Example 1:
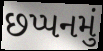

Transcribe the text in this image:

છપ્પનમું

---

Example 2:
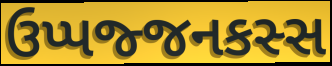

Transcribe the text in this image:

ઉપ્પજ્જનકસ્સ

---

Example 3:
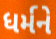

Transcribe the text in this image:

ધર્મને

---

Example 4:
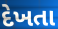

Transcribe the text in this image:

દેખતા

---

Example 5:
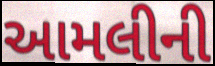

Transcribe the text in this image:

આમલીની